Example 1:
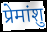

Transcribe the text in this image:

प्रेमांशु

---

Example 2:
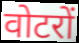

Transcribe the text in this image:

वोटरों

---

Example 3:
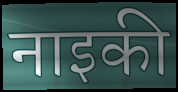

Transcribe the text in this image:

नाइकी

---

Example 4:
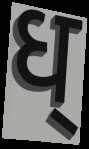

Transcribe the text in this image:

ध्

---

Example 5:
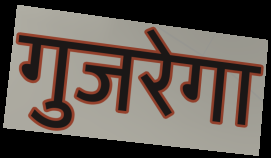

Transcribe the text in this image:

गुजरेगा